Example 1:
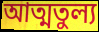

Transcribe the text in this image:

আত্মতুল্য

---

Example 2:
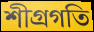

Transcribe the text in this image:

শীগ্রগতি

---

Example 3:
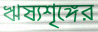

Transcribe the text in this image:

ঋষ্যশৃঙ্গের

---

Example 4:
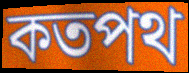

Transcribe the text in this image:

কতপথ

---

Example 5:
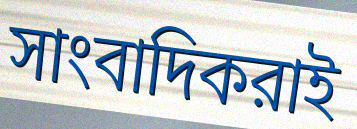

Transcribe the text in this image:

সাংবাদিকরাই